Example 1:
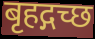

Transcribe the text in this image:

बृहद्गच्छ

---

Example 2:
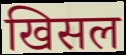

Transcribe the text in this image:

खिसल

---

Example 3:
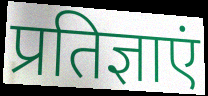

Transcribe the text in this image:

प्रतिज्ञाएं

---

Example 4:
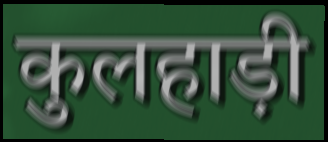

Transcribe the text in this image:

कुलहाड़ी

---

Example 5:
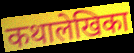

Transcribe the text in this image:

कथालेखिका